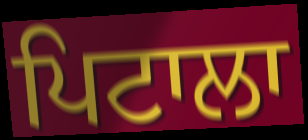
ਪਿਟਾਲਾ